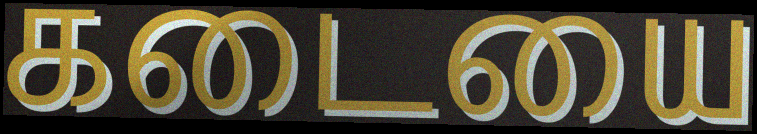
கடையை